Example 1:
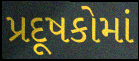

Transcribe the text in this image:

પ્રદૂષકોમાં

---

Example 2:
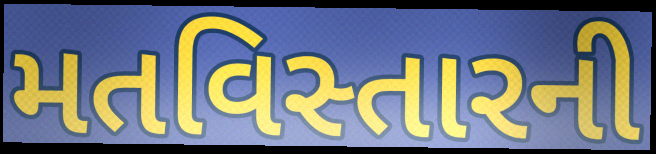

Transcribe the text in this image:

મતવિસ્તારની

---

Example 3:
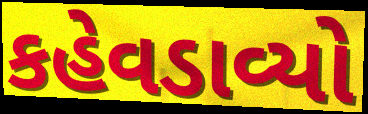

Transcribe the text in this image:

કહેવડાવ્યો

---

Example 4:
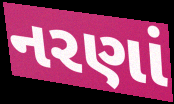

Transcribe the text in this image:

નરણાં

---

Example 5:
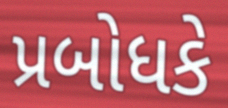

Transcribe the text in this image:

પ્રબોધકે